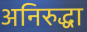
अनिरुद्धा